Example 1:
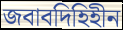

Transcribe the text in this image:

জবাবদিহিহীন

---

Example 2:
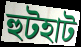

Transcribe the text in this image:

হুটহাট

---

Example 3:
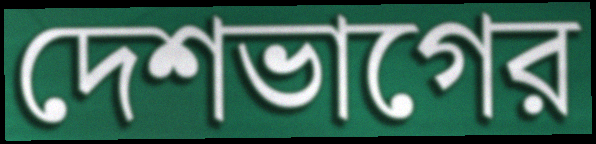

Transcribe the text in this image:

দেশভাগের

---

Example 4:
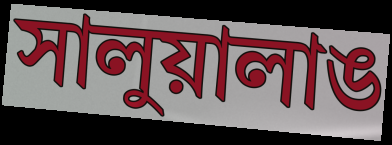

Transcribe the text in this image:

সালুয়ালাঙ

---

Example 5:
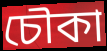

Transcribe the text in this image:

চৌকা